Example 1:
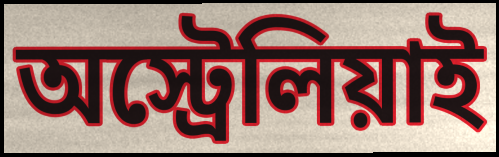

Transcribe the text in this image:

অস্ট্রেলিয়াই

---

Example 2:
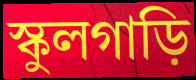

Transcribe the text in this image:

স্কুলগাড়ি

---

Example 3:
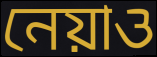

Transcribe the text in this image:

নেয়াও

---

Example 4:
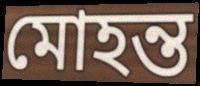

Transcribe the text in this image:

মোহন্ত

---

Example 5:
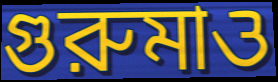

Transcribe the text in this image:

গুরুমাও